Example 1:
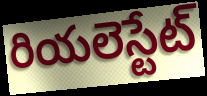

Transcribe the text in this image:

రియలెస్టేట్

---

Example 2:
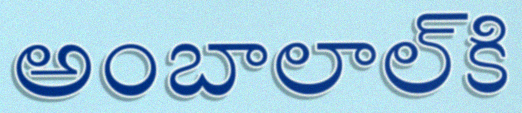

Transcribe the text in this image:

అంబాలాల్‌కి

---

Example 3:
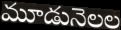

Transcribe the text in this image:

మూడునెలల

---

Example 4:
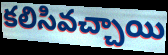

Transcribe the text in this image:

కలిసివచ్చాయి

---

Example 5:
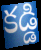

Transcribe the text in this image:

కడ్డి